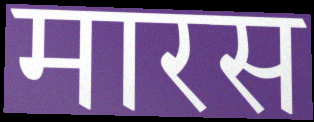
मारस